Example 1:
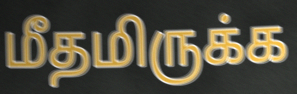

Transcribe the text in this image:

மீதமிருக்க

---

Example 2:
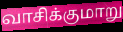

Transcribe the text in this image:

வாசிக்குமாறு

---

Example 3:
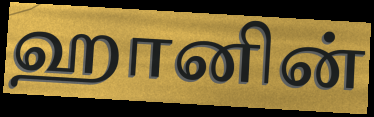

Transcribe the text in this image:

ஹானின்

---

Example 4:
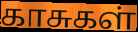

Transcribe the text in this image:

காசுகள்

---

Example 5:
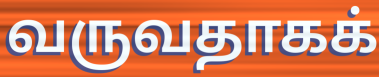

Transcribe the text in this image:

வருவதாகக்